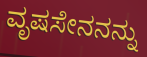
ವೃಷಸೇನನನ್ನು